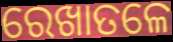
ରେଖାତଳେ